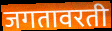
जगतावरती